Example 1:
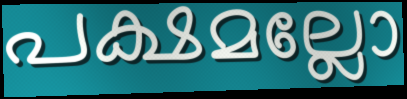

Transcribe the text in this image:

പക്ഷമല്ലോ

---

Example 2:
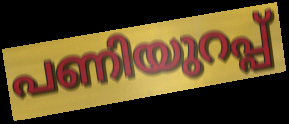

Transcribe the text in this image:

പണിയുറപ്പ്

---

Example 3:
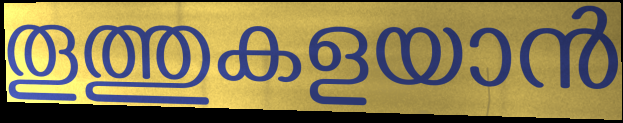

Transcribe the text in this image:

തൂത്തുകളയാൻ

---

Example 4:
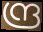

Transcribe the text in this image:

ന്ദ്ര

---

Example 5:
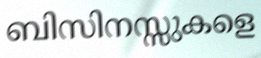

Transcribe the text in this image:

ബിസിനസ്സുകളെ